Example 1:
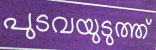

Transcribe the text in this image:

പുടവയുടുത്ത്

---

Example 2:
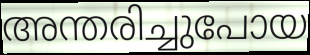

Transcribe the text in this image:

അന്തരിച്ചുപോയ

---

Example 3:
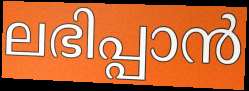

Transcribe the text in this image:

ലഭിപ്പാൻ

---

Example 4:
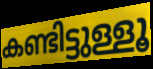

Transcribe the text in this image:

കണ്ടിട്ടുള്ളൂ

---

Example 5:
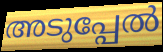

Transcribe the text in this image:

അടുപ്പേൽ